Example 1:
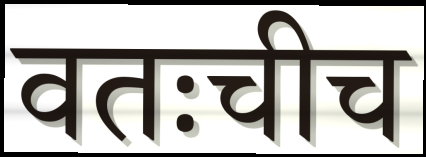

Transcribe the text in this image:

वतःचीच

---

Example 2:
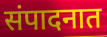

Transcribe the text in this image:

संपादनात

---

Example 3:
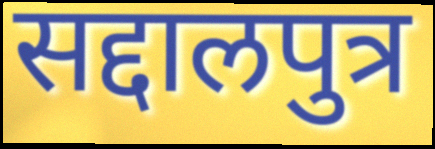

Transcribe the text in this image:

सद्दालपुत्र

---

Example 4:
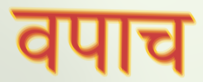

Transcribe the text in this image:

वपाच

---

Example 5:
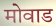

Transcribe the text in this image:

मोवाड